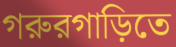
গরুরগাড়িতে